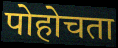
पोहोचता